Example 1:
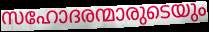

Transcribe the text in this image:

സഹോദരന്മാരുടെയും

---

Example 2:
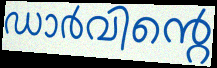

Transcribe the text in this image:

ഡാർവിന്റെ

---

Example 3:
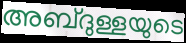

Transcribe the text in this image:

അബ്ദുള്ളയുടെ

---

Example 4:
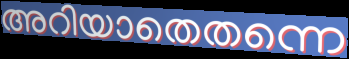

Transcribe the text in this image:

അറിയാതെതന്നെ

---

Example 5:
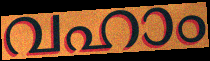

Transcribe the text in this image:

വഹാം